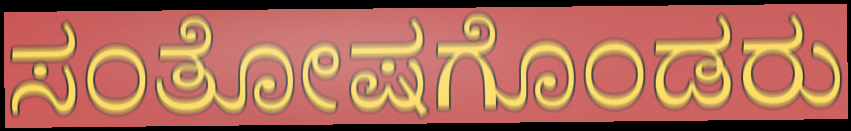
ಸಂತೋಷಗೊಂಡರು